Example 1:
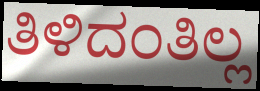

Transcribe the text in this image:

ತಿಳಿದಂತಿಲ್ಲ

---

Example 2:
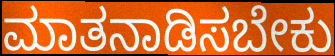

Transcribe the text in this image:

ಮಾತನಾಡಿಸಬೇಕು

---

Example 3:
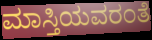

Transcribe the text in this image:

ಮಾಸ್ತಿಯವರಂತೆ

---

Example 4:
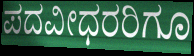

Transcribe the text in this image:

ಪದವೀಧರರಿಗೂ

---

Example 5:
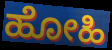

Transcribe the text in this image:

ಹೋಹಿ